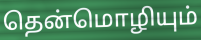
தென்மொழியும்